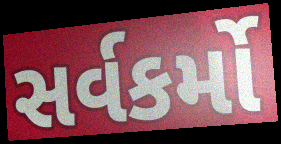
સર્વકર્મો